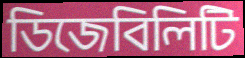
ডিজেবিলিটি